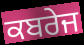
ਕਬਰੇਜ